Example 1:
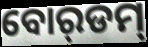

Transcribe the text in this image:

ବୋର୍‌ଡମ୍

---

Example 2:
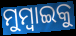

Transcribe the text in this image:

ମୁମ୍ୱାଇକୁ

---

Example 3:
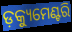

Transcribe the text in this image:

ଡ଼କ୍ୟୁମେଣ୍ଟରି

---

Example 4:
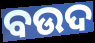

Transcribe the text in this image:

ବଉଦ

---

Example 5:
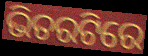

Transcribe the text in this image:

ଭିତରଟିରେ